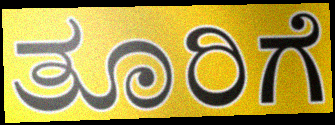
ತೂರಿಗೆ